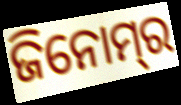
ଜିନୋମ୍‌ର